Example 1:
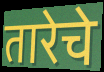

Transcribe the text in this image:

तारेचे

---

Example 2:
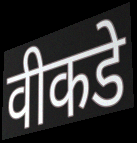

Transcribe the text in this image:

वीकडे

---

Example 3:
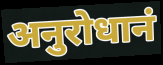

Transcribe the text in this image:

अनुरोधानं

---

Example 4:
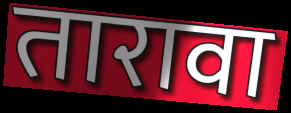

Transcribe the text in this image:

तारावा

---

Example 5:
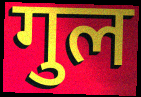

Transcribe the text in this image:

गुल